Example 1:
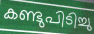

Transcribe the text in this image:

കണ്ടുപിടിച്ചു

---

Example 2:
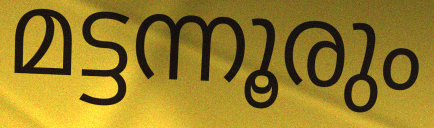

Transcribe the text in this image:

മട്ടന്നൂരും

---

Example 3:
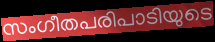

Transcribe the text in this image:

സംഗീതപരിപാടിയുടെ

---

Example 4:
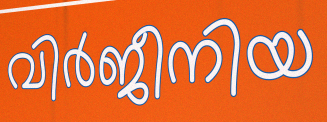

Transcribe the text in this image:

വിർജീനിയ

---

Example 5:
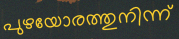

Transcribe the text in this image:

പുഴയോരത്തുനിന്ന്